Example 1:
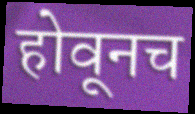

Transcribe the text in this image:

होवूनच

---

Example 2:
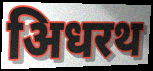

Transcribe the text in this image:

अिधरथ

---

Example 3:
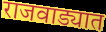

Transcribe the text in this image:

राजवाड्यात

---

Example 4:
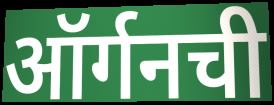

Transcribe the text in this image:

ऑर्गनची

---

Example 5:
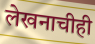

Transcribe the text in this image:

लेखनाचीही